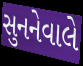
સુનનેવાલે